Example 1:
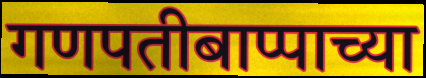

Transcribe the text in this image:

गणपतीबाप्पाच्या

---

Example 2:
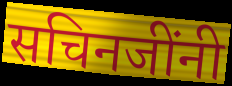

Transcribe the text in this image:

सचिनजींनी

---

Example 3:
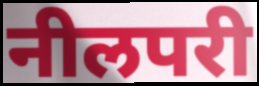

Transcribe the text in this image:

नीलपरी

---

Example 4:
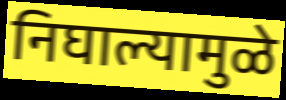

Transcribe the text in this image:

निघाल्यामुळे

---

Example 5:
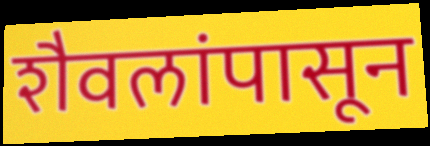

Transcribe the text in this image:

शैवलांपासून